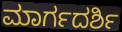
ಮಾರ್ಗದರ್ಶಿ